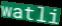
watli